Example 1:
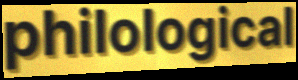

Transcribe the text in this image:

philological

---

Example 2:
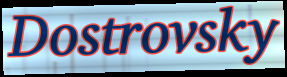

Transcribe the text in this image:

Dostrovsky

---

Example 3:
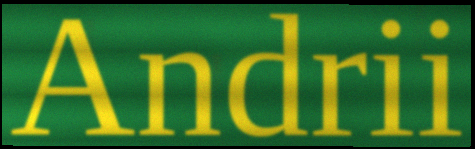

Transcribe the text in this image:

Andrii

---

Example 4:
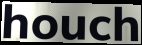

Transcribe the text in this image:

houch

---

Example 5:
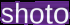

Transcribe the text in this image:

shoto